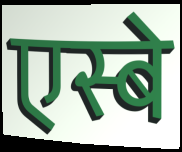
एस्बे